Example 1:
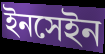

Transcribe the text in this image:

ইনসেইন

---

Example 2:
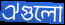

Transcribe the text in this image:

ঐগুলো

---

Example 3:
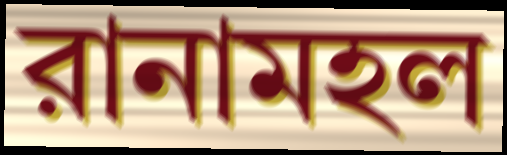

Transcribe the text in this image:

রানামহল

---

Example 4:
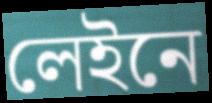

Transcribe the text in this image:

লেইনে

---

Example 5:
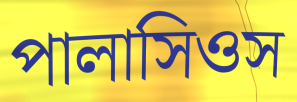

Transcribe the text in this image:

পালাসিওস